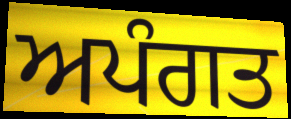
ਅਪੰਗਤ